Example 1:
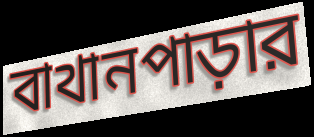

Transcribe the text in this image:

বাথানপাড়ার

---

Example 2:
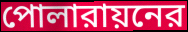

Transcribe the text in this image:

পোলারায়নের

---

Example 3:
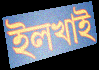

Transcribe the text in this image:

ইলখাই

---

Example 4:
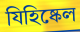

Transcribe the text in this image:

যিহিষ্কেল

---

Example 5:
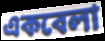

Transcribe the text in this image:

একবেলা